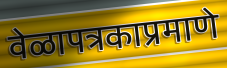
वेळापत्रकाप्रमाणे